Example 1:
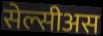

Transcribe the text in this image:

सेल्सीअस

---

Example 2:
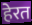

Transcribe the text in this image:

हेरत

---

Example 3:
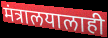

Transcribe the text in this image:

मंत्रालयालाही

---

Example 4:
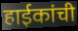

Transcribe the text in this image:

हाईकांची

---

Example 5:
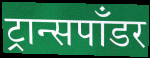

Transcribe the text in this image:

ट्रान्सपाँडर